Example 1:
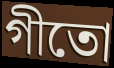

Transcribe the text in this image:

গীতো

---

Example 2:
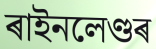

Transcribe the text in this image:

ৰাইনলেণ্ডৰ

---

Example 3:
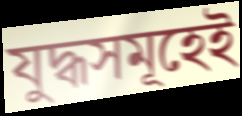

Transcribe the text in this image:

যুদ্ধসমূহেই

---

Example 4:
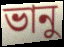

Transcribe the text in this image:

ভানু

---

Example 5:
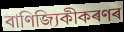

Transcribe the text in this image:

বাণিজ্যিকীকৰণৰ